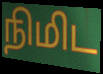
நிமிட